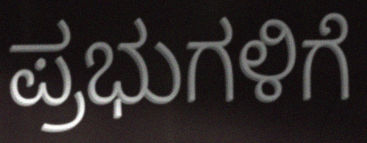
ಪ್ರಭುಗಳಿಗೆ